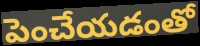
పెంచేయడంతో